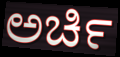
ಅರ್ಚಿ